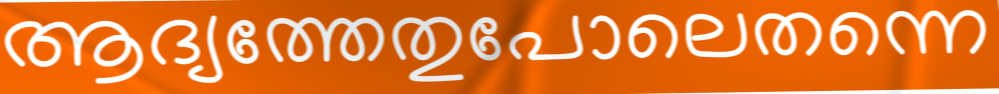
ആദ്യത്തേതുപോലെതന്നെ